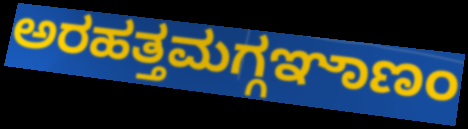
ಅರಹತ್ತಮಗ್ಗಞಾಣಂ